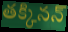
తక్కినన్